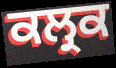
ਕਲ੍ਰਕ